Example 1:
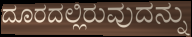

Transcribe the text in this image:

ದೂರದಲ್ಲಿರುವುದನ್ನು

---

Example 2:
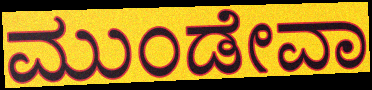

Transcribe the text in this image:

ಮುಂಡೇವಾ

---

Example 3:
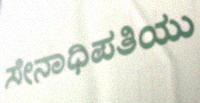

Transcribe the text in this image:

ಸೇನಾಧಿಪತಿಯು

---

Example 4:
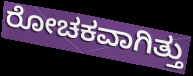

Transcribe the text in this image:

ರೋಚಕವಾಗಿತ್ತು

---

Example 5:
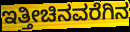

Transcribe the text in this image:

ಇತ್ತೀಚಿನವರೆಗಿನ